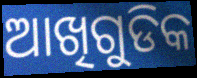
ଆଖିଗୁଡିକ